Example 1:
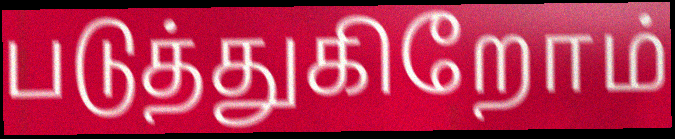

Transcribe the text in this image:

படுத்துகிறோம்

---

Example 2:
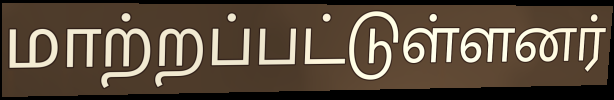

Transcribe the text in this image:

மாற்றப்பட்டுள்ளனர்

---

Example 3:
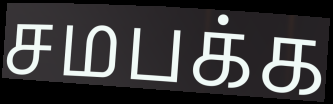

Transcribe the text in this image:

சமபக்க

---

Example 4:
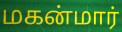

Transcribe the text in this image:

மகன்மார்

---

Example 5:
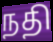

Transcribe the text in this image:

நதி